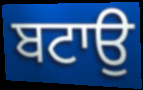
ਬਟਾਉ